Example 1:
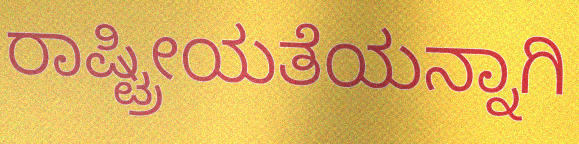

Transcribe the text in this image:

ರಾಷ್ಟ್ರೀಯತೆಯನ್ನಾಗಿ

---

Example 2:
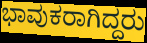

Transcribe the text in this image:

ಭಾವುಕರಾಗಿದ್ದರು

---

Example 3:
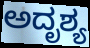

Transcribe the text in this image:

ಅದೃಶ್ಯ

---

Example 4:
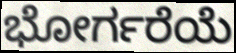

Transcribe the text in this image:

ಭೋರ್ಗರೆಯೆ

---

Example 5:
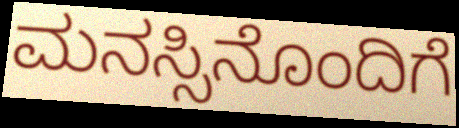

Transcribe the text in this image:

ಮನಸ್ಸಿನೊಂದಿಗೆ